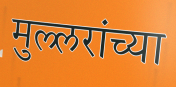
मुल्लरांच्या